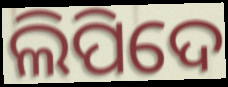
ଲିପିଦେ